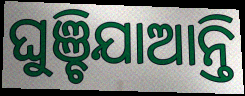
ଘୁଞ୍ଚିଯାଆନ୍ତି